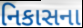
નિકાસના